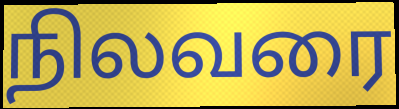
நிலவரை